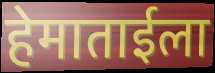
हेमाताईला